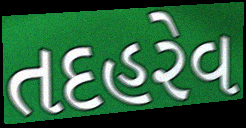
તદહરેવ